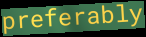
preferably